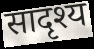
सादृश्य